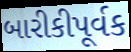
બારીકીપૂર્વક